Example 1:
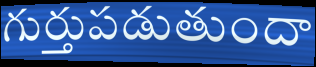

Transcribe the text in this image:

గుర్తుపడుతుందా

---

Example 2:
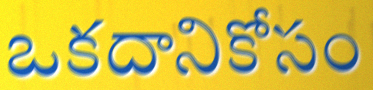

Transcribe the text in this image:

ఒకదానికోసం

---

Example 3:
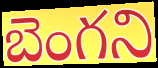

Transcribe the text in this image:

బెంగని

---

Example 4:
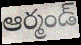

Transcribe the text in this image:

ఆర్మండ్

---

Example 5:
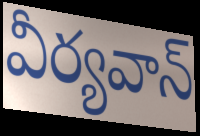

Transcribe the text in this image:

వీర్యవాన్